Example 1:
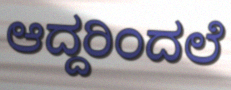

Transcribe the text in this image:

ಆದ್ದರಿಂದಲೆ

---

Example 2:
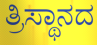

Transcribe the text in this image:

ತ್ರಿಸ್ಥಾನದ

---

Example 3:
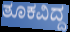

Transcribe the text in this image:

ತೂಕವಿದ್ದ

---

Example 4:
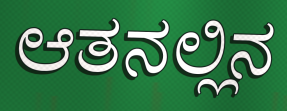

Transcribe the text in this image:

ಆತನಲ್ಲಿನ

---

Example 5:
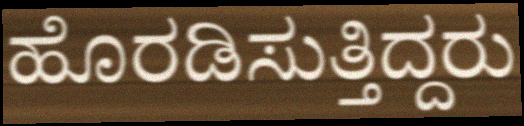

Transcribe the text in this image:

ಹೊರಡಿಸುತ್ತಿದ್ದರು